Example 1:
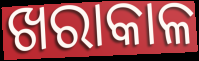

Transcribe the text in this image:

ଖରାକାଳ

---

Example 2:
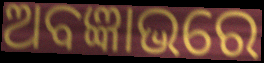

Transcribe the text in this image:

ଅବଜ୍ଞାଭରେ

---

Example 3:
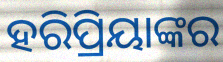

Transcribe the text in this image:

ହରିପ୍ରିୟାଙ୍କର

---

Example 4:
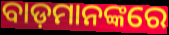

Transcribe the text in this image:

ବାଡ଼ମାନଙ୍କରେ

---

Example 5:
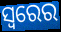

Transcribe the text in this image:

ସ୍ୱରେର